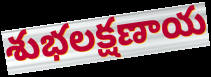
శుభలక్షణాయ